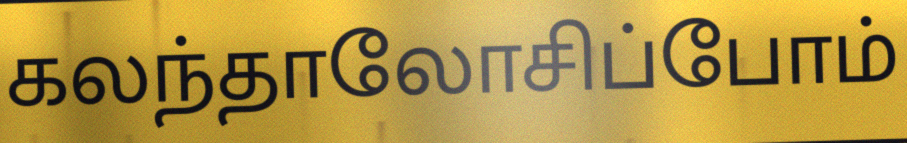
கலந்தாலோசிப்போம்